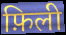
फ़िली